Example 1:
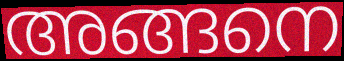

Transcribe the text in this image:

അങ്ങനെ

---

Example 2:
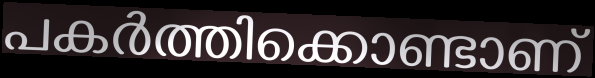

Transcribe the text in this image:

പകർത്തിക്കൊണ്ടാണ്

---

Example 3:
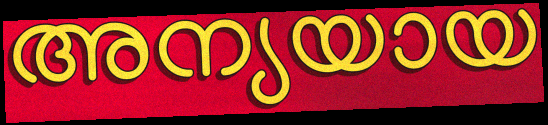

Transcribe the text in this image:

അന്യയായ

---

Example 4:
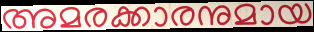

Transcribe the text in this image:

അമരക്കാരനുമായ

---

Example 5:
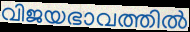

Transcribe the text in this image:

വിജയഭാവത്തിൽ